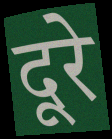
दूरे